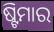
ଷ୍ଟିମାର